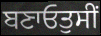
ਬਣਾਓਤੁਸੀਂ